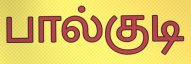
பால்குடி